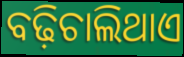
ବଢ଼ିଚାଲିଥାଏ